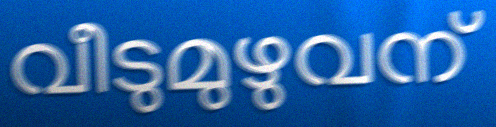
വീടുമുഴുവന്